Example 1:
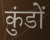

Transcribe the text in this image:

कुंडों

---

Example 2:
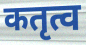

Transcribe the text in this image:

कतृत्व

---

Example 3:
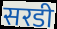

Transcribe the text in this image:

सरडी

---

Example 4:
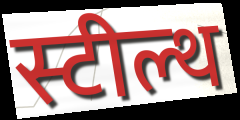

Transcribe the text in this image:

स्टील्थ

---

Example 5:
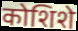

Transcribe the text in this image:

कोशिशे